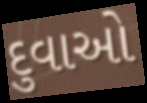
દુવાઓ